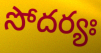
సోదర్యః